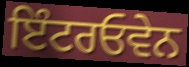
ਇੰਟਰਓਵੇਨ